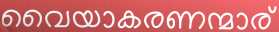
വൈയാകരണന്മാര്